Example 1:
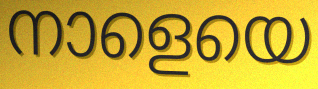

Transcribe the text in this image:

നാളെയെ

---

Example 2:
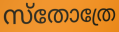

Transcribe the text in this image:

സ്തോത്രേ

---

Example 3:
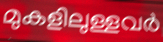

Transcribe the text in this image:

മുകളിലുള്ളവർ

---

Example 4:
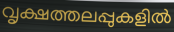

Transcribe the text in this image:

വൃക്ഷത്തലപ്പുകളിൽ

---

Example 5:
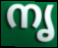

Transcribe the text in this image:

നൃ